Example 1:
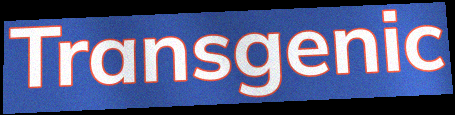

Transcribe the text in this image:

Transgenic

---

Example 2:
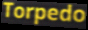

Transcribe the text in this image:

Torpedo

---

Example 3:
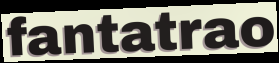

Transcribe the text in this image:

fantatrao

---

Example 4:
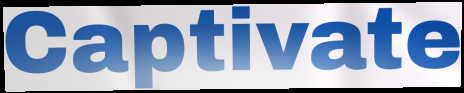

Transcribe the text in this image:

Captivate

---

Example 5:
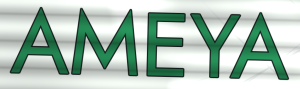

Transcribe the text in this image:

AMEYA